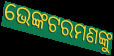
ଭେଙ୍କଟରମଣଙ୍କୁ